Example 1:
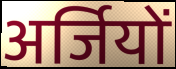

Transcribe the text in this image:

अर्जियों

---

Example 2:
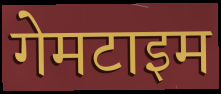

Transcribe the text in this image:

गेमटाइम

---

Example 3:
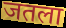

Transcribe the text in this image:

जतला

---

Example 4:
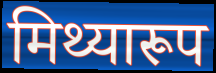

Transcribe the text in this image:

मिथ्यारूप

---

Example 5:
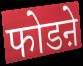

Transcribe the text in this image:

फोडऩे